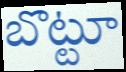
బొట్టూ